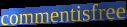
commentisfree